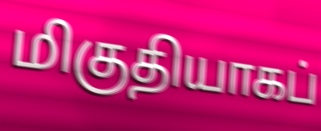
மிகுதியாகப்